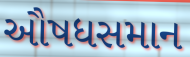
ઔષધસમાન